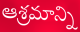
ఆశ్రమాన్ని